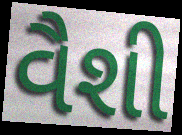
વૈશી